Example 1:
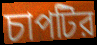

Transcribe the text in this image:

চাপটির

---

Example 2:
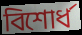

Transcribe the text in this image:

বিশোর্ধ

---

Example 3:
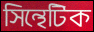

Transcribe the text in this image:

সিন্থেটিক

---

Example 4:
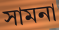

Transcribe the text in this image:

সামনা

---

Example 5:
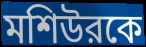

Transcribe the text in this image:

মশিউরকে